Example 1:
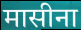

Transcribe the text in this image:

मासीना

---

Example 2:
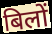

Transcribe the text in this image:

बिलों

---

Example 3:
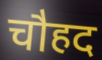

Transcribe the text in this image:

चौहद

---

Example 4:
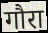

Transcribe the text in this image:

गौरा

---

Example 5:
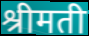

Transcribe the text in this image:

श्रीमती